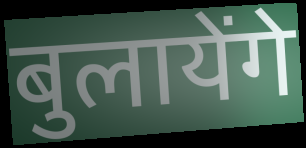
बुलायेंगे